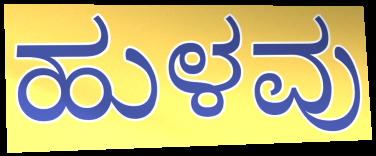
ಹುಳವು